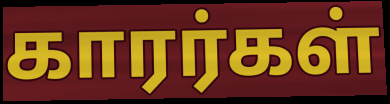
காரர்கள்